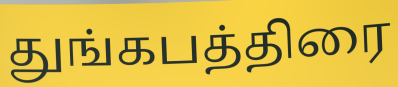
துங்கபத்திரை